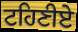
ਟਹਿਣੀਏ